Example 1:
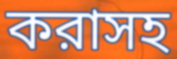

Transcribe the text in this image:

করাসহ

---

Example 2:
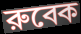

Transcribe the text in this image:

রুবেক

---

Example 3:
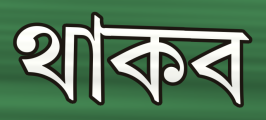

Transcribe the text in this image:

থাকব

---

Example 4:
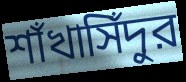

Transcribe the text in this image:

শাঁখাসিঁদুর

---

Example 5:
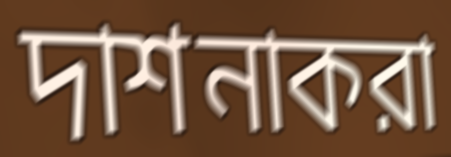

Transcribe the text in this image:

দাশনাকরা